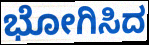
ಭೋಗಿಸಿದ